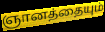
ஞானத்தையும்